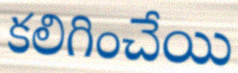
కలిగించేయి